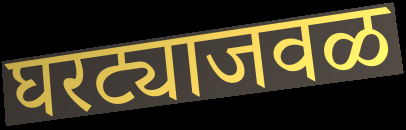
घरट्याजवळ